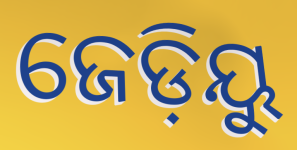
ଜେଡ଼ିୟୁ